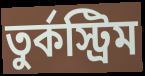
তুর্কস্ট্রিম